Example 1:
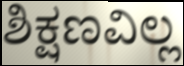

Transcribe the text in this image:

ಶಿಕ್ಷಣವಿಲ್ಲ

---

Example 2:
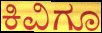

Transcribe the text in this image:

ಕಿವಿಗೂ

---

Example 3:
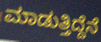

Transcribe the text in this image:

ಮಾಡುತ್ತಿದ್ದೆನೆ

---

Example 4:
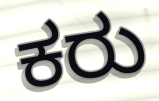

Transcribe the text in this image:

ಕರು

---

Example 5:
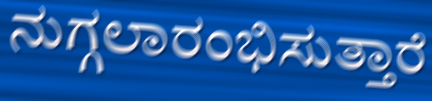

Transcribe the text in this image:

ನುಗ್ಗಲಾರಂಭಿಸುತ್ತಾರೆ